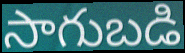
సాగుబడి